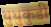
थुथुकुडी